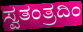
ಸ್ವತಂತ್ರದಿಂ